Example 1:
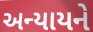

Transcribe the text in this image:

અન્યાયને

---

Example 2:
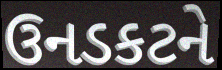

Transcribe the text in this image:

ઉનડકટને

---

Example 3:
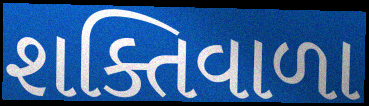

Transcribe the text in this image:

શક્તિવાળા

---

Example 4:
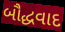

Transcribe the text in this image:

બૌદ્ધવાદ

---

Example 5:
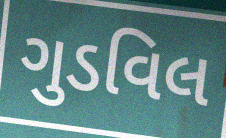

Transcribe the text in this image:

ગુડવિલ